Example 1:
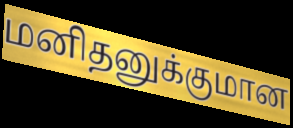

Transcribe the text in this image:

மனிதனுக்குமான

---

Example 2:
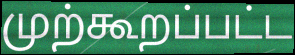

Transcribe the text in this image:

முற்கூறப்பட்ட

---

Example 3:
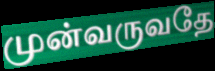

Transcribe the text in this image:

முன்வருவதே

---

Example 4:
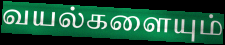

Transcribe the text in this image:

வயல்களையும்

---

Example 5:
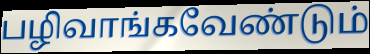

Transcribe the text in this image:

பழிவாங்கவேண்டும்